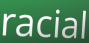
racial